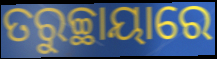
ତରୁଚ୍ଛାୟାରେ